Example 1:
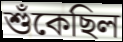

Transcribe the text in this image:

শুঁকেছিল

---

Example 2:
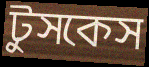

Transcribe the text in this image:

টুসকেস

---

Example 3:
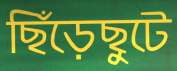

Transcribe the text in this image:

ছিঁড়েছুটে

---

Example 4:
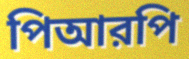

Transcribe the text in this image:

পিআরপি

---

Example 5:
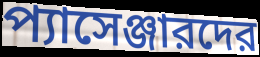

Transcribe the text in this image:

প্যাসেঞ্জারদের